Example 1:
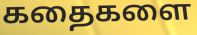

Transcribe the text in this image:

கதைகளை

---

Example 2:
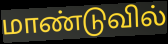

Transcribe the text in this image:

மாண்டுவில்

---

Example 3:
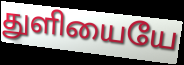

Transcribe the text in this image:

துளியையே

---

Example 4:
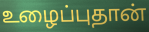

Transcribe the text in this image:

உழைப்புதான்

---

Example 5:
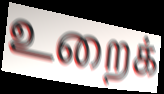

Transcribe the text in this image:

உறைக்